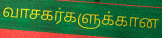
வாசகர்களுக்கான